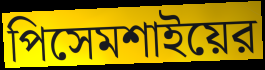
পিসেমশাইয়ের